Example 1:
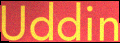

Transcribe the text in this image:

Uddin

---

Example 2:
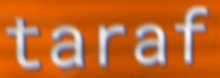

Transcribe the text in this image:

taraf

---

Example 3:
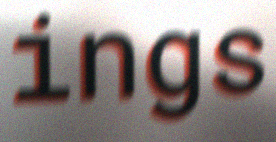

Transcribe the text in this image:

ings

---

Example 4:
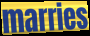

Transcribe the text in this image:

marries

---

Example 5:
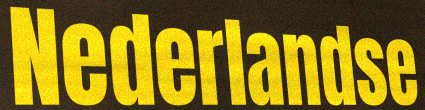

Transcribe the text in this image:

Nederlandse